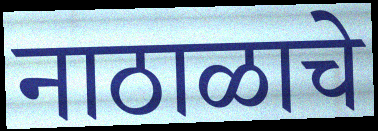
नाठाळाचे